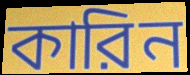
কারিন